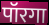
पॉरगा